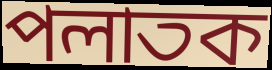
পলাতক